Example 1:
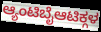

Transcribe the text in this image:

ಆ್ಯಂಟಿಬೈಆಟಿಕ್ಗಳ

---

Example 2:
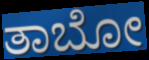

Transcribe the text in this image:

ತಾಬೋ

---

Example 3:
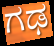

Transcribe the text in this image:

ಗಢ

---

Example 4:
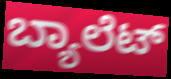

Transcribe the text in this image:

ಬ್ಯಾಲೆಟ್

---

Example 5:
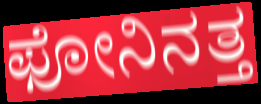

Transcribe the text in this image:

ಫೋನಿನತ್ತ